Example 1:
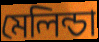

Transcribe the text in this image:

মেলিন্ডা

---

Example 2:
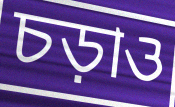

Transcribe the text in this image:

চড়াও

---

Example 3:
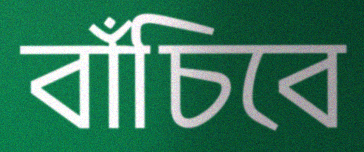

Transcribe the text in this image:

বাঁচিবে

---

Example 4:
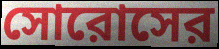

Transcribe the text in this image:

সোরোসের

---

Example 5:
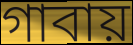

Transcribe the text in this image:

গাবায়